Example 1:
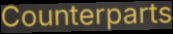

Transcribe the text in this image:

Counterparts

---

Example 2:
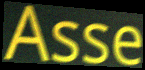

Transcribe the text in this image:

Asse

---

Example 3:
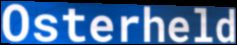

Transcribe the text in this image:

Osterheld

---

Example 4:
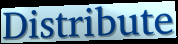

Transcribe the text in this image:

Distribute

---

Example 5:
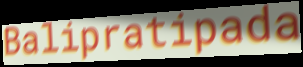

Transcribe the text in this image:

Balipratipada